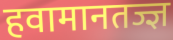
हवामानतज्ज्ञ